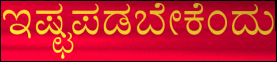
ಇಷ್ಟಪಡಬೇಕೆಂದು